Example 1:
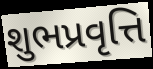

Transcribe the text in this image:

શુભપ્રવૃત્તિ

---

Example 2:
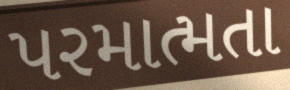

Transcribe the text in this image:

પરમાત્મતા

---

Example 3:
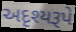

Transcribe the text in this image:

અદૃશ્યરૂપે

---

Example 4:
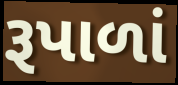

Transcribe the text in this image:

રૂપાળાં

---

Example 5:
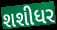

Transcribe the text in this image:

શશીધર